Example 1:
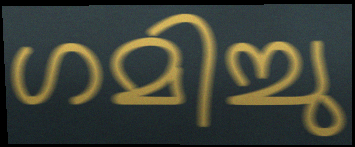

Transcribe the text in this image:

ഗമിച്ചു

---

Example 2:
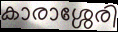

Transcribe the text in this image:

കാരാശ്ശേരി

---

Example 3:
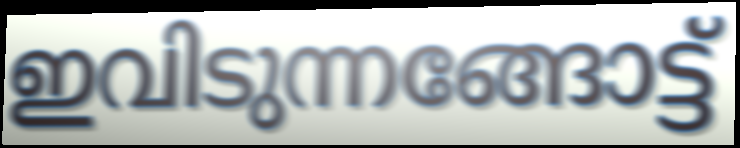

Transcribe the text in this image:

ഇവിടുന്നങ്ങോട്ട്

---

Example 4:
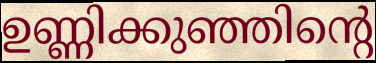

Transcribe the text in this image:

ഉണ്ണിക്കുഞ്ഞിന്റെ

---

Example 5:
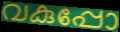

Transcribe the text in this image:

വകുപ്പോ